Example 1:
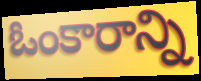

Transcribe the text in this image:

ఓంకారాన్ని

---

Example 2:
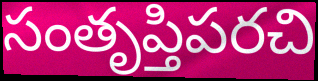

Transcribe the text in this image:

సంతృప్తిపరచి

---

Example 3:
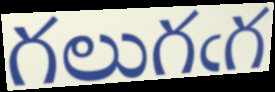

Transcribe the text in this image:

గలుగఁగ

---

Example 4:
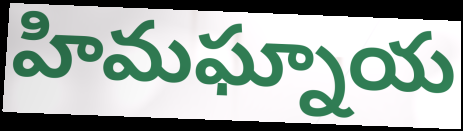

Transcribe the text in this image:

హిమఘ్నాయ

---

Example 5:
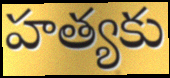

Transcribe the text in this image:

హత్యకు